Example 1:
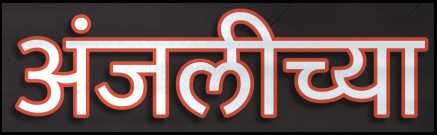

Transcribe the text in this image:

अंजलीच्या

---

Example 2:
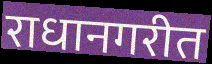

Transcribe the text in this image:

राधानगरीत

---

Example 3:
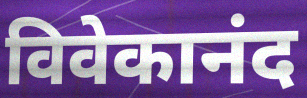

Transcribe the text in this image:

विवेकानंद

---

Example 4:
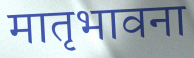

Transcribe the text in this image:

मातृभावना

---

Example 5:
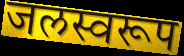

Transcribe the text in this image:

जलस्वरूप